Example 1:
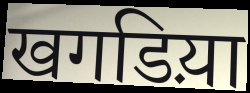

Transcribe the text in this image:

खगडिय़ा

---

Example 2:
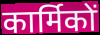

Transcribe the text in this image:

कार्मिकों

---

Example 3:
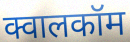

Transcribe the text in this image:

क्वालकॉम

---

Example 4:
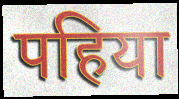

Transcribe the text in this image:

पहिया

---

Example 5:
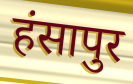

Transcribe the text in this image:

हंसापुर